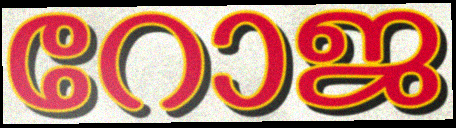
റോജ